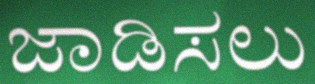
ಜಾಡಿಸಲು